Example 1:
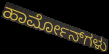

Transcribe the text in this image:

ಹಾರ್ಮೋನ್‌ಗಳು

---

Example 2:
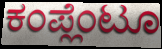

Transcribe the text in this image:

ಕಂಪ್ಲೆಂಟೂ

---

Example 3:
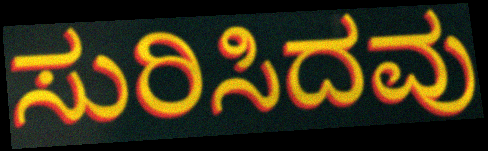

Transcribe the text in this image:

ಸುರಿಸಿದವು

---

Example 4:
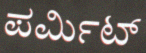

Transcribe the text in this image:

ಪರ್ಮಿಟ್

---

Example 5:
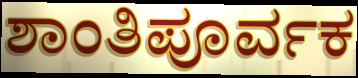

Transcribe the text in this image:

ಶಾಂತಿಪೂರ್ವಕ